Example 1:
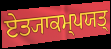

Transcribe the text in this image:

ਏਤ੍ਯਾਕਮ੍ਪਯਤ੍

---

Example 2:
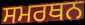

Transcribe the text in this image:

ਸਮਰਥਨ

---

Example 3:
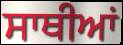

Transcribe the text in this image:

ਸਾਥੀਆਂ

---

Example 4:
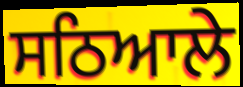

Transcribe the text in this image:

ਸਠਿਆਲੇ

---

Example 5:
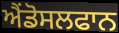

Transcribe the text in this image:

ਐਂਡੋਸਲਫਾਨ